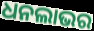
ଧନଲାଭର